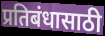
प्रतिबंधासाठी